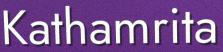
Kathamrita